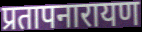
प्रतापनारायण